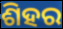
ଶିହର